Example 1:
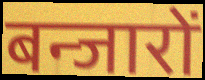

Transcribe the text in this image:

बन्जारों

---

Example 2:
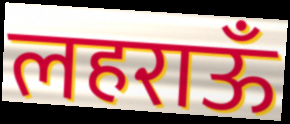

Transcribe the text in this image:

लहराऊँ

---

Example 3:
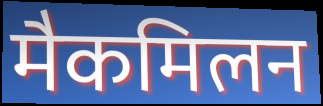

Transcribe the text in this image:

मैकमिलन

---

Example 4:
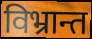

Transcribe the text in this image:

विभ्रान्त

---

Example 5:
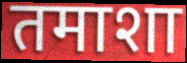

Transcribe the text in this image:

तमाशा